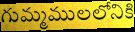
గుమ్మములలోనికి